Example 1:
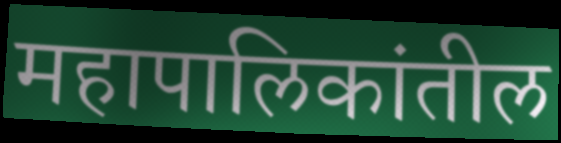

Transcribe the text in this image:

महापालिकांतील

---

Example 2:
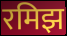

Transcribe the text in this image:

रमिझ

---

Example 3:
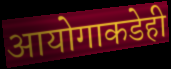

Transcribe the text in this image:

आयोगाकडेही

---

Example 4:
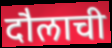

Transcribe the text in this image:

दौलाची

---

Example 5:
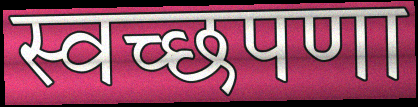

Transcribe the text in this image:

स्वच्छपणा